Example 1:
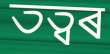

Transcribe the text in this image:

তত্বৰ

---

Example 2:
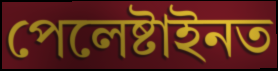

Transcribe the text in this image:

পেলেষ্টাইনত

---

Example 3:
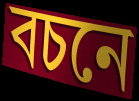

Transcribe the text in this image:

বচনে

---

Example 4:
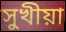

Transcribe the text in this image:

সুখীয়া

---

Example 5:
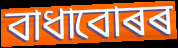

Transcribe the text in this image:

বাধাবোৰৰ